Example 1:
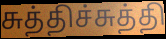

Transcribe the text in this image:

சுத்திச்சுத்தி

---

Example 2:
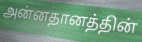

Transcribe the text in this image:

அன்னதானத்தின்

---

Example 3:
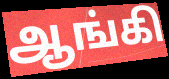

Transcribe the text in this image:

ஆங்கி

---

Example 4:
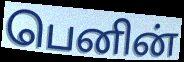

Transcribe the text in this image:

பெனின்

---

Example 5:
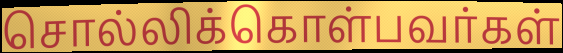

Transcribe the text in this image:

சொல்லிக்கொள்பவர்கள்